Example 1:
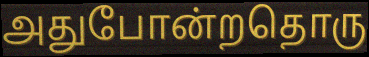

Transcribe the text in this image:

அதுபோன்றதொரு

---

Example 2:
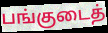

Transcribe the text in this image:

பங்குடைத்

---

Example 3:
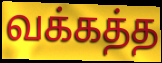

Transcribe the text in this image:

வக்கத்த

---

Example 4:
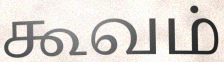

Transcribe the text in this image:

கூவம்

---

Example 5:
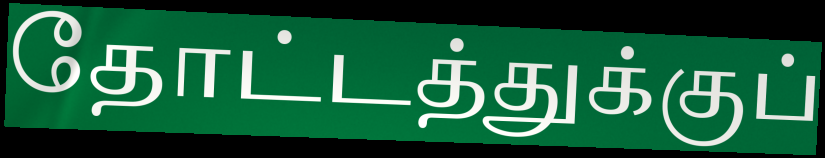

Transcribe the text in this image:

தோட்டத்துக்குப்